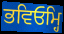
ਭਵਿਓਮ੍ਹਿ